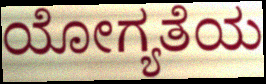
ಯೋಗ್ಯತೆಯ